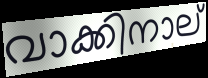
വാക്കിനാല്